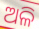
ଅଳି